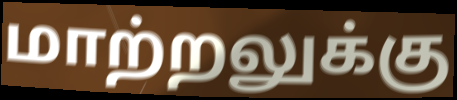
மாற்றலுக்கு